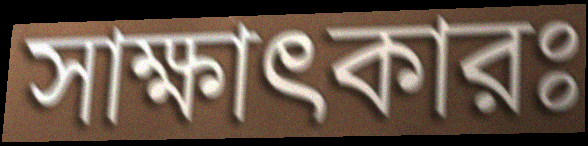
সাক্ষাৎকারঃ